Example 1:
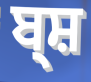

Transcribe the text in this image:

ਬ੍ਸ਼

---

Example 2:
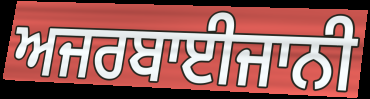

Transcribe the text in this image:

ਅਜਰਬਾਈਜਾਨੀ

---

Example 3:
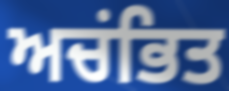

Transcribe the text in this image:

ਅਚਂਭਿਤ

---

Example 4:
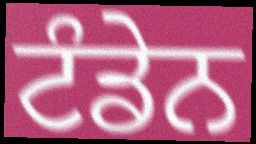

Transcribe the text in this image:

ਟੰਡੇਨ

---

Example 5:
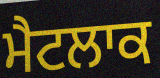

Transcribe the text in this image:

ਮੈਟਲਾਕ